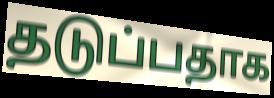
தடுப்பதாக